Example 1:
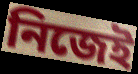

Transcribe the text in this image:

নিজেই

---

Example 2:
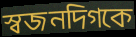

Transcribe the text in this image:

স্বজনদিগকে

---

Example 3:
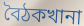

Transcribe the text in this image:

বৈঠকখানা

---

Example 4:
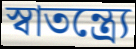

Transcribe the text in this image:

স্বাতন্ত্র্যে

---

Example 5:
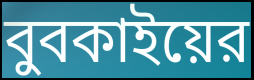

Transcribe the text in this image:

বুবকাইয়ের